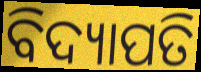
ବିଦ୍ୟାପତି